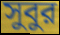
সুবুর